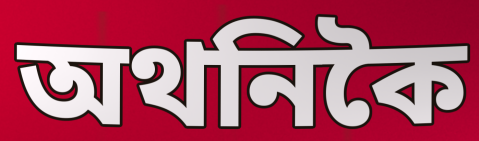
অথনিকৈ